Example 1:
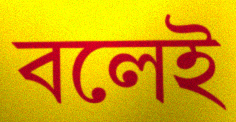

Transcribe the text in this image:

বলেই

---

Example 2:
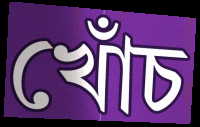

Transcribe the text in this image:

খোঁচ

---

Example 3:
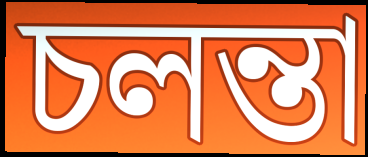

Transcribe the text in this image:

চলন্তা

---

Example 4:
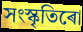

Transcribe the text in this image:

সংস্কৃতিৰো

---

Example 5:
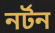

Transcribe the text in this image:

নৰ্টন